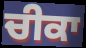
ਚੀਕਾ